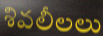
శివలీలలు